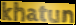
khatun